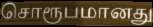
சொரூபமானது